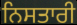
ਨਿਸਤਾਰੀ